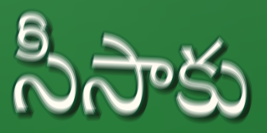
సీసాకు